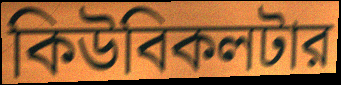
কিউবিকলটার